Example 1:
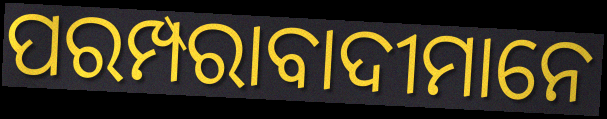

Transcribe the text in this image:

ପରମ୍ପରାବାଦୀମାନେ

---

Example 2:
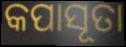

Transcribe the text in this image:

କପାସୂତା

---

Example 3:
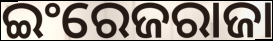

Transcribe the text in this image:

ଇଂରେଜରାଜା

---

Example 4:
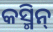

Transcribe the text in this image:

କସ୍ମିନ୍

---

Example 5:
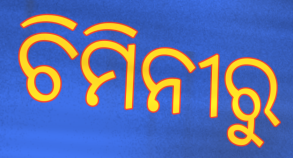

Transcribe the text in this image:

ଚିମିନୀରୁ